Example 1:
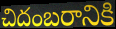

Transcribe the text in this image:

చిదంబరానికి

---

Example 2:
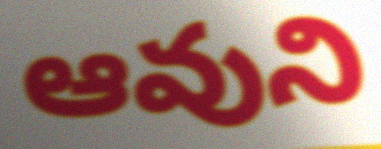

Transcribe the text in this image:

ఆవుని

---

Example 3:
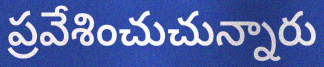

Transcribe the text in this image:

ప్రవేశించుచున్నారు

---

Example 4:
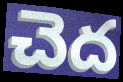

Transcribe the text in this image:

చెద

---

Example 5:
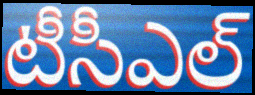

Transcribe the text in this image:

టీసీఎల్